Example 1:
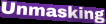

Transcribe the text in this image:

Unmasking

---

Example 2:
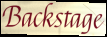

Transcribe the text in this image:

Backstage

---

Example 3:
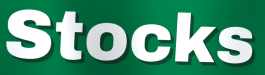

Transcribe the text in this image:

Stocks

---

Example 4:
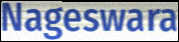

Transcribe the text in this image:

Nageswara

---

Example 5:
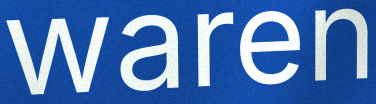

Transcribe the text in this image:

waren